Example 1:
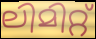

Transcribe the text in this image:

ലിമിറ്റ്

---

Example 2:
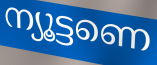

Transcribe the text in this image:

ന്യൂട്ടണെ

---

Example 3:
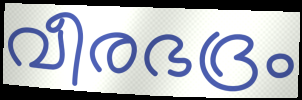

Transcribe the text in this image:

വീരഭദ്രം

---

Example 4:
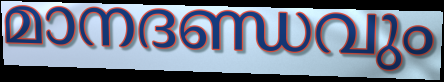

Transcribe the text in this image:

മാനദണ്ഡവും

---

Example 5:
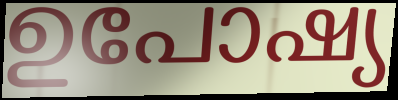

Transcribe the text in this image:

ഉപോഷ്യ